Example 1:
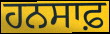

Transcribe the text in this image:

ਹਨਸਾਫ਼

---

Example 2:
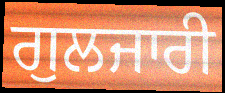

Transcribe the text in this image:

ਗੁਲਜਾਰੀ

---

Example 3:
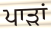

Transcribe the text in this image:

ਪਾੜਾਂ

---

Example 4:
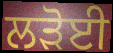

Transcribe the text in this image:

ਲੜੋਈ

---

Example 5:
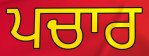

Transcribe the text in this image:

ਪਚਾਰ